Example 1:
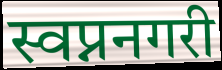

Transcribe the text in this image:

स्वप्ननगरी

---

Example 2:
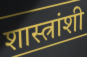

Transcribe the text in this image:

शास्त्रांशी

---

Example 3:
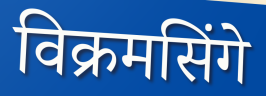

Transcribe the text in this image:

विक्रमसिंगे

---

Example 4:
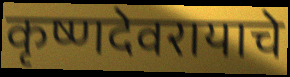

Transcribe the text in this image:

कृष्णदेवरायाचे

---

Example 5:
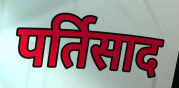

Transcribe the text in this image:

पर्तिसाद